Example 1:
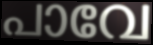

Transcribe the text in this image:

പാവേ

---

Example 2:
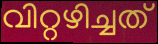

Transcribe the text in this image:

വിറ്റഴിച്ചത്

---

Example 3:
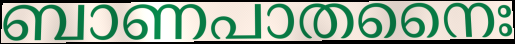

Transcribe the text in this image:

ബാണപാതനൈഃ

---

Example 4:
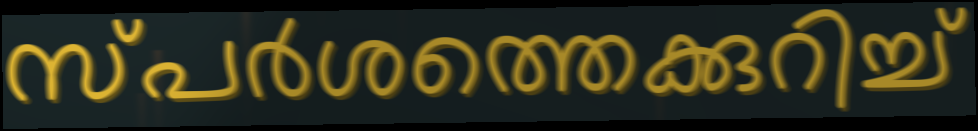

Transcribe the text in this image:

സ്പർശത്തെക്കുറിച്ച്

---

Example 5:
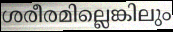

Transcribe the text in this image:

ശരീരമില്ലെങ്കിലും